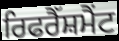
ਰਿਫਰੈੱਸ਼ਮੈਂਟ